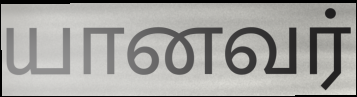
யானவர்